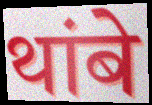
थांबे